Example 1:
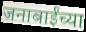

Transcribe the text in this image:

जनाबाईंच्या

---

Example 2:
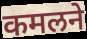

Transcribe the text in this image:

कमलने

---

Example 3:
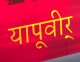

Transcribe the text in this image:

यापूवीर्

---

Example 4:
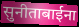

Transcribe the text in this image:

सुनीताबाईना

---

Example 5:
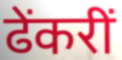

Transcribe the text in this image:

ढेंकरीं